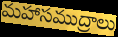
మహాసముద్రాలు